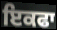
ਇਕਫਾ